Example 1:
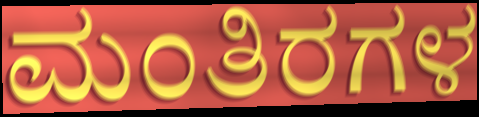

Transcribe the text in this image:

ಮಂತಿರಗಳ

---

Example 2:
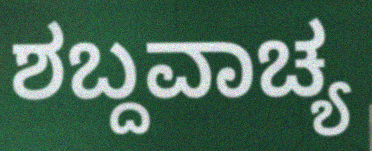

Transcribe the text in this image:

ಶಬ್ದವಾಚ್ಯ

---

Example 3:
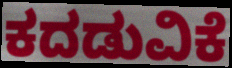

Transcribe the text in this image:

ಕದಡುವಿಕೆ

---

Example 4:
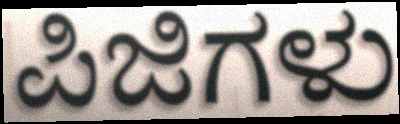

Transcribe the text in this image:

ಪಿಜಿಗಳು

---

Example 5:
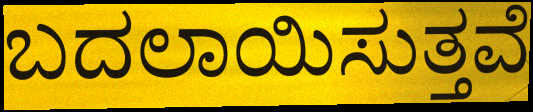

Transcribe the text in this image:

ಬದಲಾಯಿಸುತ್ತವೆ